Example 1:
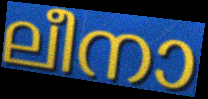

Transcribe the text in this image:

ലീനാ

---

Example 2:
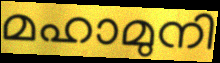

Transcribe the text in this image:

മഹാമുനി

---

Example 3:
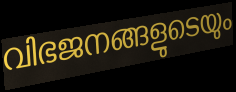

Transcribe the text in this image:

വിഭജനങ്ങളുടെയും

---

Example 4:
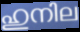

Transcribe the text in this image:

ഹുനില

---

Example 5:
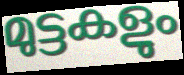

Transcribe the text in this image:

മുട്ടകളും